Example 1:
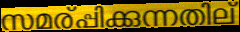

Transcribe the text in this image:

സമര്പ്പിക്കുന്നതില്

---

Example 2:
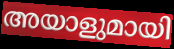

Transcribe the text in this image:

അയാളുമായി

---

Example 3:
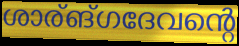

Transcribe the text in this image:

ശാര്ങ്ഗദേവന്റെ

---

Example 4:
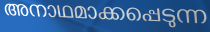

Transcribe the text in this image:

അനാഥമാക്കപ്പെടുന്ന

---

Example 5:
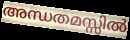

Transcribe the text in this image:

അന്ധതമസ്സിൽ